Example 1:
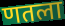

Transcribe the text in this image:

णतला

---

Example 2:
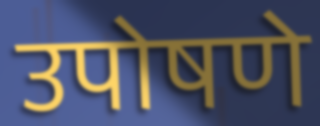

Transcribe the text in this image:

उपोषणे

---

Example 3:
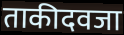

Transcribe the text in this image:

ताकीदवजा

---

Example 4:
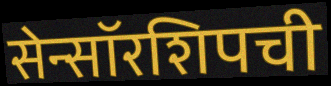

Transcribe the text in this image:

सेन्सॉरशिपची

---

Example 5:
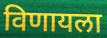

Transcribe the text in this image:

विणायला